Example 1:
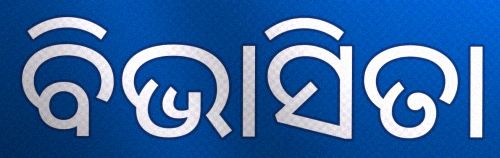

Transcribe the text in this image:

ବିଭାସିତା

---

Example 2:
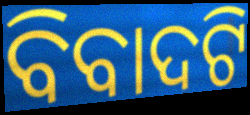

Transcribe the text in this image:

ବିବାଦଟି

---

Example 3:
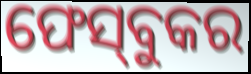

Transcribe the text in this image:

ଫେସ୍‌ବୁକର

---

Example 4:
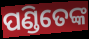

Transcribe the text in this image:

ପଣ୍ଡିତେଙ୍କ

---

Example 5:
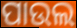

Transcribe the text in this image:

ପାଉଲ